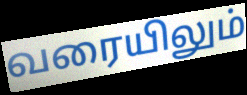
வரையிலும்